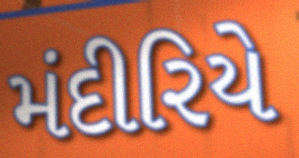
મંદીરિયે